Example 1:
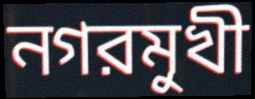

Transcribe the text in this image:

নগরমুখী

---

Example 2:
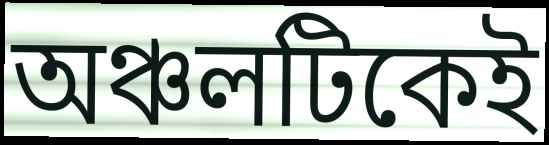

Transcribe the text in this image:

অঞ্চলটিকেই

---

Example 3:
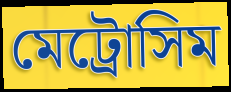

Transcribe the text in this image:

মেট্রোসিম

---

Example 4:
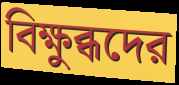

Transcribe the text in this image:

বিক্ষুব্ধদের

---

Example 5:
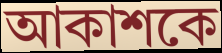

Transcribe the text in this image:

আকাশকে